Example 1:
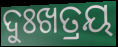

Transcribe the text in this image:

ଦୁଃଖତ୍ରୟ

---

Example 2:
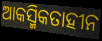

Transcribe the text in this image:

ଆକସ୍ମିକତାହୀନ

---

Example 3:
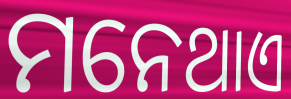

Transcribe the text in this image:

ମନେଥାଏ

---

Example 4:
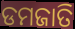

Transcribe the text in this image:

ଡମଜାତି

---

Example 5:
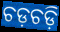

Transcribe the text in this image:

ଚଡ଼ଚଡ଼ି